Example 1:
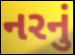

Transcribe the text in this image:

નરનું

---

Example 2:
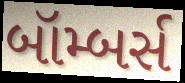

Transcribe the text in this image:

બૉમ્બર્સ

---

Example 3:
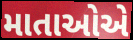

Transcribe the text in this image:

માતાઓએ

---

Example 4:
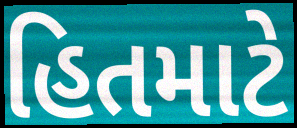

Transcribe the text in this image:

હિતમાટે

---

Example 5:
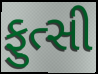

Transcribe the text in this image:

ફુત્સી